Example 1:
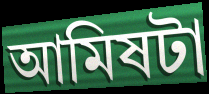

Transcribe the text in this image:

আমিষটা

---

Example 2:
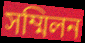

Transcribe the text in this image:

সম্মিলন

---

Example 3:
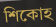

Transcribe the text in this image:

শিকোহ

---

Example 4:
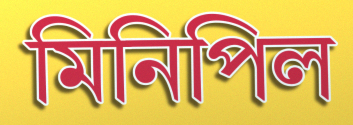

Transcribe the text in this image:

মিনিপিল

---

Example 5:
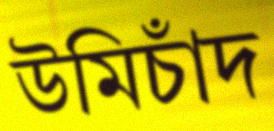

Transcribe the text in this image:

উমিচাঁদ